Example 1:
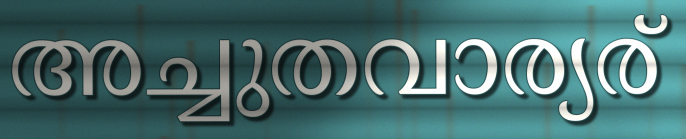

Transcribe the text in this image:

അച്ചുതവാര്യര്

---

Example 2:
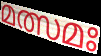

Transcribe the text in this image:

മത്സമഃ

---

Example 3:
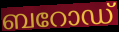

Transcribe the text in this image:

ബറോഡ്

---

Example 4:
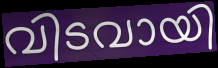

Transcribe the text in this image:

വിടവായി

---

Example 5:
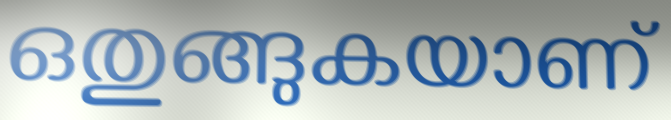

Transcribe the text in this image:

ഒതുങ്ങുകയാണ്